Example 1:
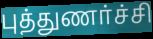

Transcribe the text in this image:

புத்துணர்ச்சி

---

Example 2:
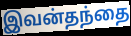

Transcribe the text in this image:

இவன்தந்தை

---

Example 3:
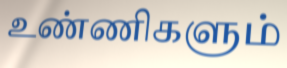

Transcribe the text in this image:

உண்ணிகளும்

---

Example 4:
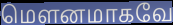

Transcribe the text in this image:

மெளனமாகவே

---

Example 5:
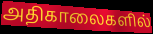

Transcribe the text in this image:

அதிகாலைகளில்